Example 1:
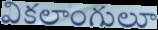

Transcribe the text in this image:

వికలాంగులూ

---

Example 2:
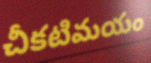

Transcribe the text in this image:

చీకటిమయం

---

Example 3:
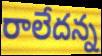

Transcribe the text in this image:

రాలేదన్న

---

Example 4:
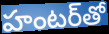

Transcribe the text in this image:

హంటర్‌తో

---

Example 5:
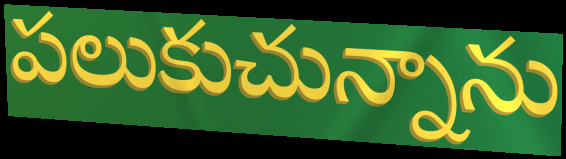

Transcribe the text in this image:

పలుకుచున్నాను